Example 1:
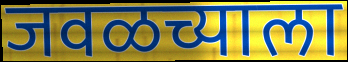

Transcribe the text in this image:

जवळच्याला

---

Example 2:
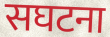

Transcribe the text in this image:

सघटना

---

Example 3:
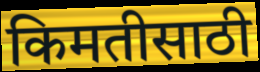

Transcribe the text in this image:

किमतीसाठी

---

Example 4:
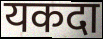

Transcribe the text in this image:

यकदा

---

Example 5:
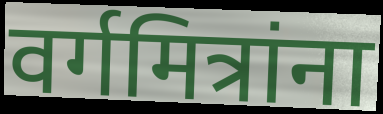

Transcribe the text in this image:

वर्गमित्रांना